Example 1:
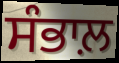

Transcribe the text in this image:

ਸੰਭਾਲ਼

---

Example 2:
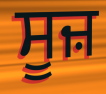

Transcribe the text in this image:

ਸੂਜ਼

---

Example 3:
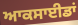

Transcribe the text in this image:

ਆਕਸਾਈਡਾਂ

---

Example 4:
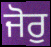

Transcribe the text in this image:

ਜੋਰੁ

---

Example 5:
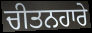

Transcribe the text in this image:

ਚੀਤਨਹਾਰੇ